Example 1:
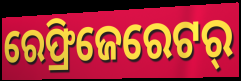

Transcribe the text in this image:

ରେଫ୍ରିଜେରେଟର୍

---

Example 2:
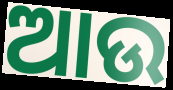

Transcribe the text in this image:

ଆଉ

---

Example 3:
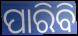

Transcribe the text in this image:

ପାରିବି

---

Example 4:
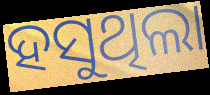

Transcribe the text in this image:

ହସୁଥିଲା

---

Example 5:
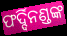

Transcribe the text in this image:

ଫର୍ଦ୍ଦିନଣ୍ଡଙ୍କ